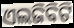
ଏଲଜିବିଟି